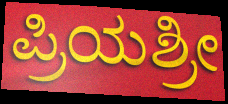
ಪ್ರಿಯಶ್ರೀ